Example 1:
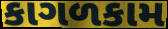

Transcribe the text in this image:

કાગળકામ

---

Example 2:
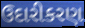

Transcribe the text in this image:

ઉદારીકરણ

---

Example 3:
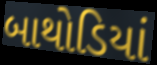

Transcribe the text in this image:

બાથોડિયાં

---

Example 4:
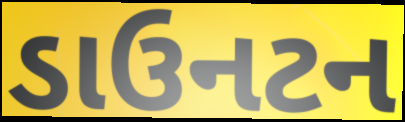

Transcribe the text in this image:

ડાઉનટન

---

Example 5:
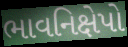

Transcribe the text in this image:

ભાવનિક્ષેપો